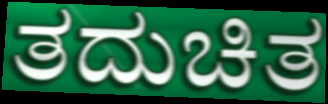
ತದುಚಿತ